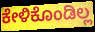
ಕೇಳಿಕೊಂಡಿಲ್ಲ